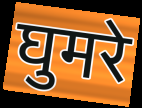
घुमरे